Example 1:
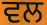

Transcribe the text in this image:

ਵਲ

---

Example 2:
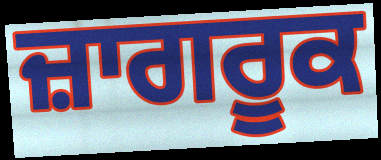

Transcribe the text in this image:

ਜ਼ਾਗਰੂਕ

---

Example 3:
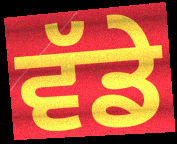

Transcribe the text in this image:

ਵੱਡੇ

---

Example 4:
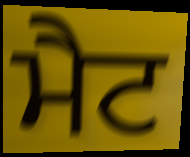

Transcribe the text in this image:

ਮੈਟ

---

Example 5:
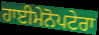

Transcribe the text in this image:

ਹਾਈਮੇਨੋਪਟੇਰਾ